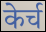
केर्च